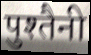
पुश्तैनी